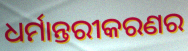
ଧର୍ମାନ୍ତରୀକରଣର